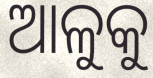
ଆଳୁକୁ